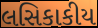
લસિકાકીય